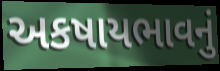
અકષાયભાવનું